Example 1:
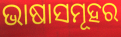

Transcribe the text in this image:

ଭାଷାସମୂହର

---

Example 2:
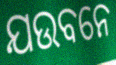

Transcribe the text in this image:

ଯଉବନେ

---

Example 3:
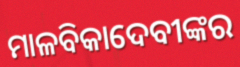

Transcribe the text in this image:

ମାଳବିକାଦେବୀଙ୍କର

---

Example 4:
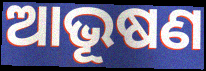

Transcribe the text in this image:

ଆଭୂଷଣ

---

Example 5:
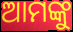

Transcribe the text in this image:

ଆମଙ୍କୁ